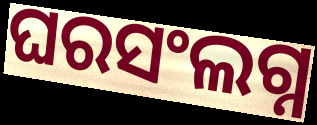
ଘରସଂଲଗ୍ନ